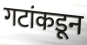
गटांकडून